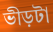
ভীড়টা